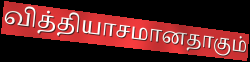
வித்தியாசமானதாகும்